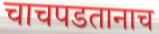
चाचपडतानाच